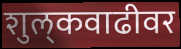
शुल्कवाढीवर